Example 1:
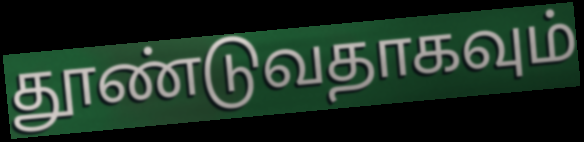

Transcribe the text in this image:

தூண்டுவதாகவும்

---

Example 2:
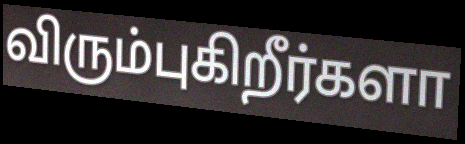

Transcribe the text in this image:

விரும்புகிறீர்களா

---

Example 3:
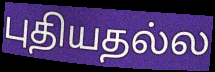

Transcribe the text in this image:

புதியதல்ல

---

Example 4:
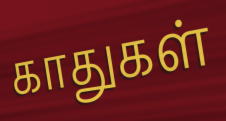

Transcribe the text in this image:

காதுகள்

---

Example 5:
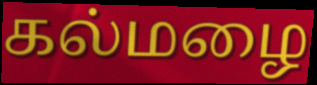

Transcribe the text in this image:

கல்மழை